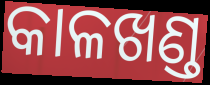
କାଳଖଣ୍ଡ